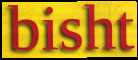
bisht